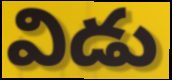
విడు